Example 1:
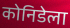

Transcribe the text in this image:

कोनिडेला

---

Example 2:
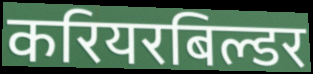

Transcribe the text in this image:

करियरबिल्डर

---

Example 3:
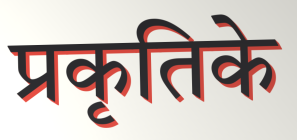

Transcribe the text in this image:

प्रकृतिके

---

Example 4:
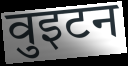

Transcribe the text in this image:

वुइटन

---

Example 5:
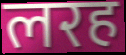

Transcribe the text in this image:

लरह